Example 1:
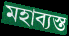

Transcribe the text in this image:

মহাব্যস্ত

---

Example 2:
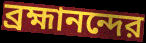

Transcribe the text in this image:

ব্রহ্মানন্দের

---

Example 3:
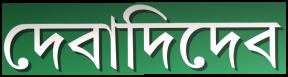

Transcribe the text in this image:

দেবাদিদেব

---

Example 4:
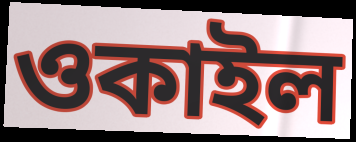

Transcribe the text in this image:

ওকাইল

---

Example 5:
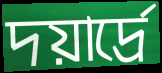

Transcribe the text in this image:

দয়ার্দ্রে